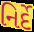
નિર્દે